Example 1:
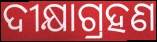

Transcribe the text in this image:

ଦୀକ୍ଷାଗ୍ରହଣ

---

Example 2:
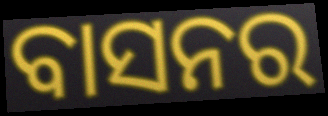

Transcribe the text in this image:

ବାସନର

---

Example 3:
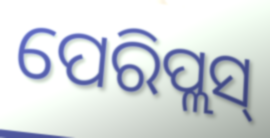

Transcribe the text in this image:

ପେରିପ୍ଲସ୍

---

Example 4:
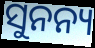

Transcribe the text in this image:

ସୁନନ୍ୟ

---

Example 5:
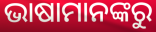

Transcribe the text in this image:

ଭାଷାମାନଙ୍କରୁ